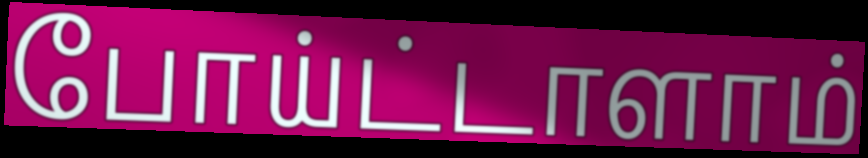
போய்ட்டாளாம்